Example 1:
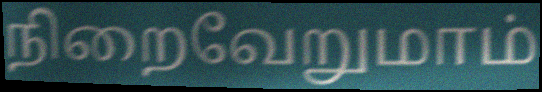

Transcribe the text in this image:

நிறைவேறுமாம்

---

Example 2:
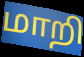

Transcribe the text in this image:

மாறி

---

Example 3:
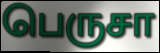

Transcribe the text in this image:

பெருசா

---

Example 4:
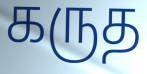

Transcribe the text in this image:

கருத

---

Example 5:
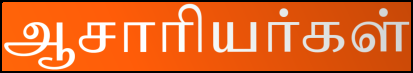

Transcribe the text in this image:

ஆசாரியர்கள்